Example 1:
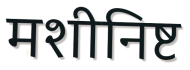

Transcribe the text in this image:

मशीनिष्ट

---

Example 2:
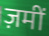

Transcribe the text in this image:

ज़मीं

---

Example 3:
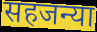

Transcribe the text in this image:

सहजन्या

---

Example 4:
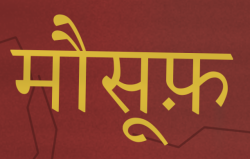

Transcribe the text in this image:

मौसूफ़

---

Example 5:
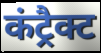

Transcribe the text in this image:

कंट्रैक्ट